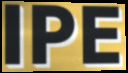
IPE